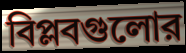
বিপ্লবগুলোর